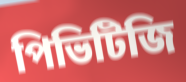
পিভিটিজি